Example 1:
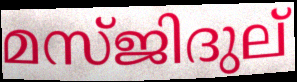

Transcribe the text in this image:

മസ്ജിദുല്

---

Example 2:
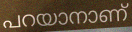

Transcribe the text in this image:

പറയാനാണ്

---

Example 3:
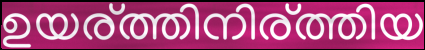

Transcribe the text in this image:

ഉയര്ത്തിനിര്ത്തിയ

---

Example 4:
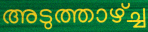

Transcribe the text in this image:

അടുത്താഴ്ച്ച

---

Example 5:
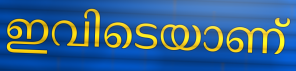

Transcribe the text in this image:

ഇവിടെയാണ്